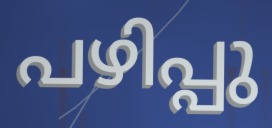
പഴിപ്പു